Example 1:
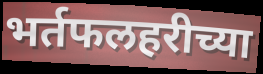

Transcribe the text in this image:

भर्तफलहरीच्या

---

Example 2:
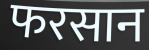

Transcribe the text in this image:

फरसान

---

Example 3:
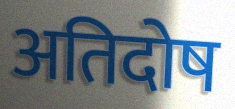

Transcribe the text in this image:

अतिदोष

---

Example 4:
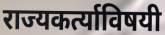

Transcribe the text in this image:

राज्यकर्त्याविषयी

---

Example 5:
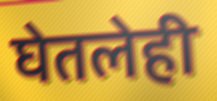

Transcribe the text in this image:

घेतलेही